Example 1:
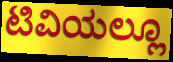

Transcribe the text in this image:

ಟಿವಿಯಲ್ಲೂ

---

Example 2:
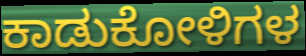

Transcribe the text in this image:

ಕಾಡುಕೋಳಿಗಳ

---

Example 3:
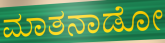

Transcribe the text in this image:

ಮಾತನಾಡೋ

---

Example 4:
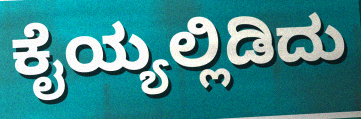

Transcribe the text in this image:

ಕೈಯ್ಯಲ್ಲಿಡಿದು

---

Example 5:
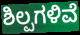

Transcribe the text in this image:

ಶಿಲ್ಪಗಳಿವೆ